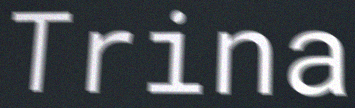
Trina